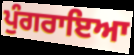
ਪੁੰਗਰਾਇਆ